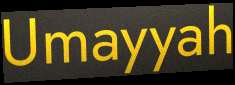
Umayyah